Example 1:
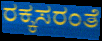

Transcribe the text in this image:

ರಕ್ಕಸರಂತೆ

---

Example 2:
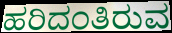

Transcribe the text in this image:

ಹರಿದಂತಿರುವ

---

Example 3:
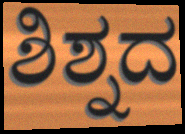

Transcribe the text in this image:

ಶಿಶ್ನದ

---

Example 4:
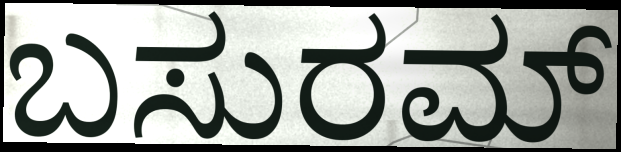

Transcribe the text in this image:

ಬಸುರಮ್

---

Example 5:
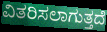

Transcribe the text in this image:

ವಿತರಿಸಲಾಗುತ್ತದೆ